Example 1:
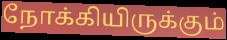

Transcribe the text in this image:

நோக்கியிருக்கும்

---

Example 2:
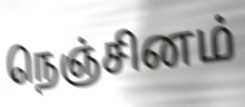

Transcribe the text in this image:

நெஞ்சினம்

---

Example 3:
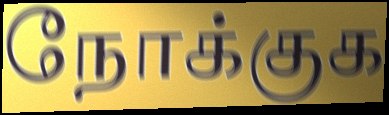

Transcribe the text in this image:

நோக்குக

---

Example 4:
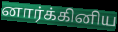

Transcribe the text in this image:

னார்க்கினிய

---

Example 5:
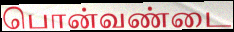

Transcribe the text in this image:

பொன்வண்டை